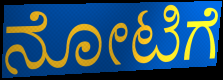
ನೋಟಿಗೆ